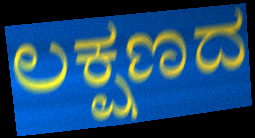
ಲಕ್ಷಣದ